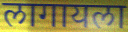
लागायला